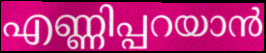
എണ്ണിപ്പറയാൻ